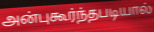
அன்புகூர்ந்தபடியால்